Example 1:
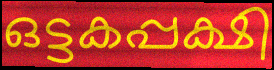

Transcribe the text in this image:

ഒട്ടകപ്പക്ഷി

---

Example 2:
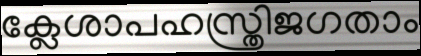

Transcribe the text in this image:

ക്ലേശാപഹസ്ത്രിജഗതാം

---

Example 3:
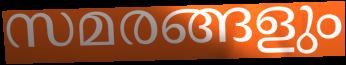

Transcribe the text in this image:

സമരങ്ങളും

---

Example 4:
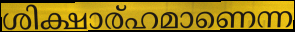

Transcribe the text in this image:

ശിക്ഷാര്ഹമാണെന്ന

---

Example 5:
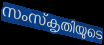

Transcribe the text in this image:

സംസ്‌കൃതിയുടെ